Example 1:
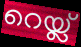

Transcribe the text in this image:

റെയ്ല്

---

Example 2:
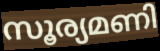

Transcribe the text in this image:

സൂര്യമണി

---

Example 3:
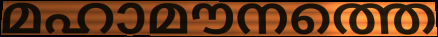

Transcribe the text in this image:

മഹാമൗനത്തെ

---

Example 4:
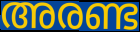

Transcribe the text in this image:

അരണ്ട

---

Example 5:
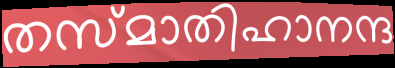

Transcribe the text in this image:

തസ്മാതിഹാനന്ദ